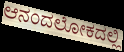
ಆನಂದಲೋಕದಲ್ಲಿ